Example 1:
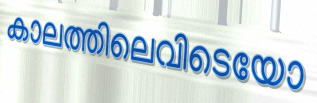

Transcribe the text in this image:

കാലത്തിലെവിടെയോ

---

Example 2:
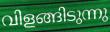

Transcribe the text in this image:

വിളങ്ങിടുന്നു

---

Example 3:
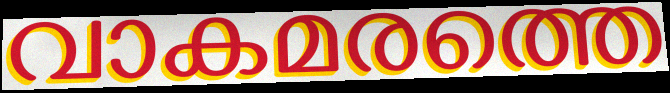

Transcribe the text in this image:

വാകമരത്തെ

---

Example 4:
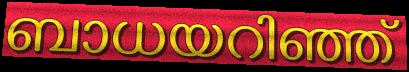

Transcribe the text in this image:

ബാധയറിഞ്ഞ്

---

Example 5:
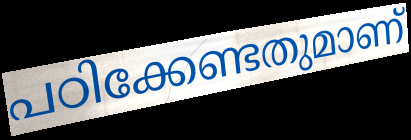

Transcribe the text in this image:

പഠിക്കേണ്ടതുമാണ്